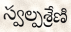
స్వల్పశ్రేణి